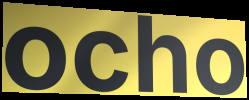
ocho